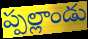
ప్పల్లాండు